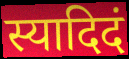
स्यादिदं